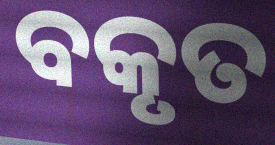
ବକୃତ